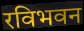
रविभवन